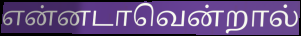
என்னடாவென்றால்